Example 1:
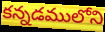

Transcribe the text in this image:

కన్నడములోని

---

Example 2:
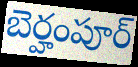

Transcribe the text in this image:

బెర్హంపూర్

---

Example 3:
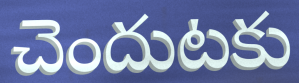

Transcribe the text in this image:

చెందుటకు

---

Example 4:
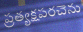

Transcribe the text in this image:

ప్రత్యక్షపరచెను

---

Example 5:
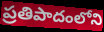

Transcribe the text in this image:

ప్రతిపాదంలోని